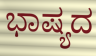
ಭಾಷ್ಯದ